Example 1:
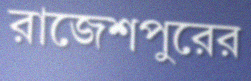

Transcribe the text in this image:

রাজেশপুরের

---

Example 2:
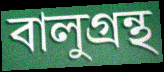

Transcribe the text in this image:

বালুগ্রন্থ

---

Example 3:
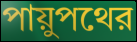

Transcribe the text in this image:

পায়ুপথের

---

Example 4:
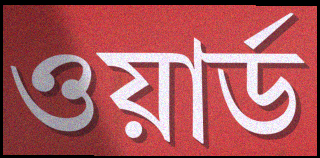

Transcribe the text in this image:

ওয়ার্ড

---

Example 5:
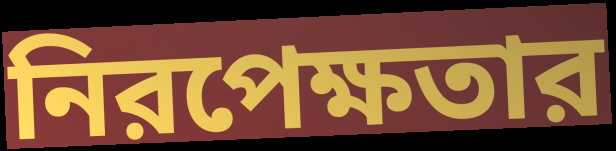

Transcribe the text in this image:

নিরপেক্ষতার